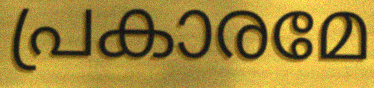
പ്രകാരമേ